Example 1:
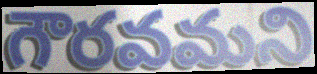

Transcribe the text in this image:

గౌరవమని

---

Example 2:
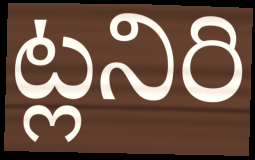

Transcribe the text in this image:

ట్లనిరి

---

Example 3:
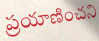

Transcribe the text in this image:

ప్రయాణించని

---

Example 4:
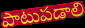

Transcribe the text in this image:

పాటుపడాలి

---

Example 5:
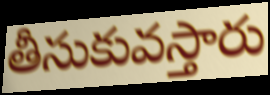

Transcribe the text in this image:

తీసుకువస్తారు